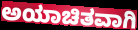
ಅಯಾಚಿತವಾಗಿ